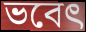
ভবেৎ